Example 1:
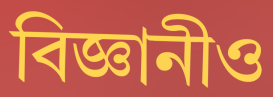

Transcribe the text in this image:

বিজ্ঞানীও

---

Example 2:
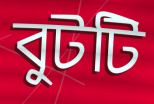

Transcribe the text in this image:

বুটটি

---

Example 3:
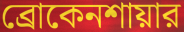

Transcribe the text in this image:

ব্রোকেনশায়ার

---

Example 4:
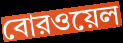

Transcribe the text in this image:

বোরওয়েল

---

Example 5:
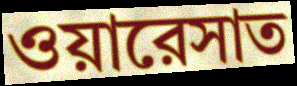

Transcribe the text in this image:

ওয়ারেসাত